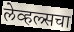
लेव्हल्सचा